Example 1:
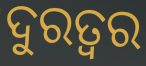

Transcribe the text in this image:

ଦୁରତ୍ଵର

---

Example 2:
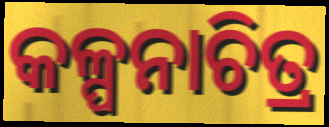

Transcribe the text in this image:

କଳ୍ପନାଚିତ୍ର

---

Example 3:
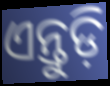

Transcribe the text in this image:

ଏନ୍ତୁଡ଼ି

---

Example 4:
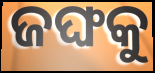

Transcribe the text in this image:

ଜଙ୍ଘକୁ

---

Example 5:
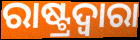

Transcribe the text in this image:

ରାଷ୍ଟ୍ରଦ୍ଵାରା